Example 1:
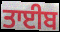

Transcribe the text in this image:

ਤਾਈਬ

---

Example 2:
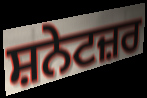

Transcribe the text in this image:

ਸ਼ਨੇਟਜ਼ਰ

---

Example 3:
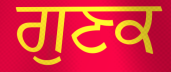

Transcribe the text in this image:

ਗੁਣਕ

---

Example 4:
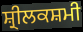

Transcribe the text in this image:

ਸ਼੍ਰੀਲਕਸ਼ਮੀ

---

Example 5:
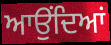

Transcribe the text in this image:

ਆਉਂਦਿਆਂ